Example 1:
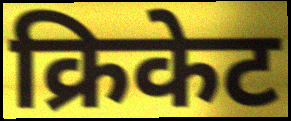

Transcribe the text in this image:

क्रिकेट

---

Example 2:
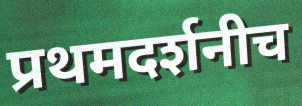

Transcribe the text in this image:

प्रथमदर्शनीच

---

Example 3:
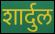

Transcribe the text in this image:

शार्दुल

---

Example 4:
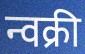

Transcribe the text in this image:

न्वक्री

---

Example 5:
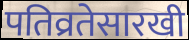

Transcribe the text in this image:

पतिव्रतेसारखी